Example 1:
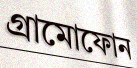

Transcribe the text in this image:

গ্ৰামোফোন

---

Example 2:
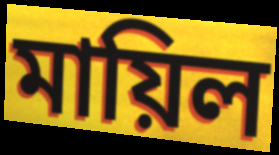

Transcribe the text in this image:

মায়িল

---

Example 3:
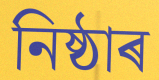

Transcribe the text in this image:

নিষ্ঠাৰ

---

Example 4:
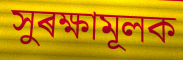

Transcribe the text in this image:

সুৰক্ষামূলক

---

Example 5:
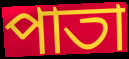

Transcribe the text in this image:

পাতা